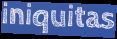
iniquitas